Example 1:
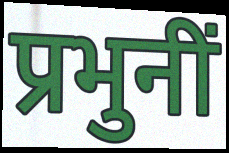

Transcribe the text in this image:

प्रभुनीं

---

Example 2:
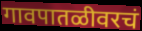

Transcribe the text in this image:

गावपातळीवरचं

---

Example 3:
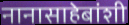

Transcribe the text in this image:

नानासाहेबांशी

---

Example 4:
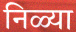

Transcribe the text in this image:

निळ्या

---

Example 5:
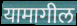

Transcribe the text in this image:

यामागील